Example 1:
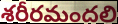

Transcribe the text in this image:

శరీరమందలి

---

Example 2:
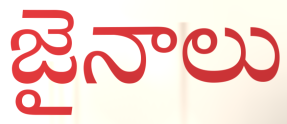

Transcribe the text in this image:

జైనాలు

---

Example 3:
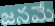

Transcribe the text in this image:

జనమే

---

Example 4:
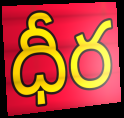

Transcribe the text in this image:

ధీర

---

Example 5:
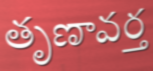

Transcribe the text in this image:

తృణావర్త